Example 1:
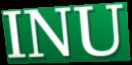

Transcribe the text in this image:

INU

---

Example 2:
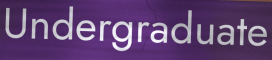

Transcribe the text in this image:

Undergraduate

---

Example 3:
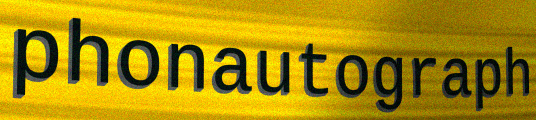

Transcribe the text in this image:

phonautograph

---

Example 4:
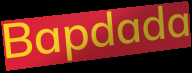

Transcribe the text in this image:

Bapdada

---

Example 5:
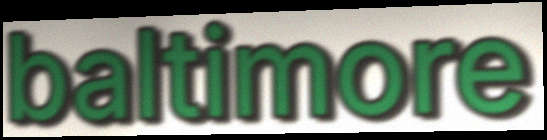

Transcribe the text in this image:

baltimore